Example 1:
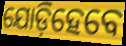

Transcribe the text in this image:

ଯୋଡ଼ିହେବେ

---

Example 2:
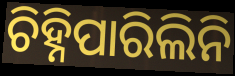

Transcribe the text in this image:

ଚିହ୍ନିପାରିଲିନି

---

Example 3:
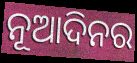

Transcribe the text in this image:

ନୂଆଦିନର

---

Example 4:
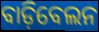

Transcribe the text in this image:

ବାଡ଼ିବେଲନ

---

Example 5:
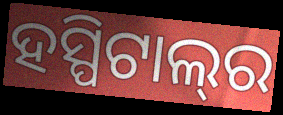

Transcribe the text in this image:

ହସ୍ପିଟାଲ୍‌ର